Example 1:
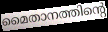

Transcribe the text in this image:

മൈതാനത്തിന്റെ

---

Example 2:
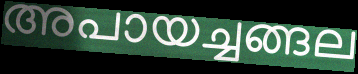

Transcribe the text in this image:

അപായച്ചങ്ങല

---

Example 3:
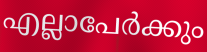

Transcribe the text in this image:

എല്ലാപേർക്കും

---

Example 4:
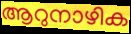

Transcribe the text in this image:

ആറുനാഴിക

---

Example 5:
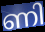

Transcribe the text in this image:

ണി